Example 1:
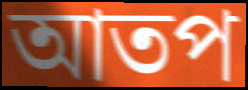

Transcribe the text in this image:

আতপ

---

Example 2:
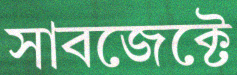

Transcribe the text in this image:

সাবজেক্টে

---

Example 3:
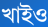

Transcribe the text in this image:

খাইও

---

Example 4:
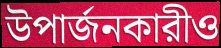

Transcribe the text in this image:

উপার্জনকারীও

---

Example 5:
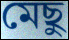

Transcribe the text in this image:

মেছু